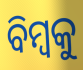
ବିମ୍ବକୁ